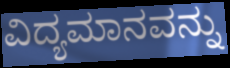
ವಿದ್ಯಮಾನವನ್ನು